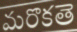
మరొకతె